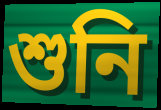
শুনি